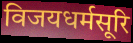
विजयधर्मसूरि